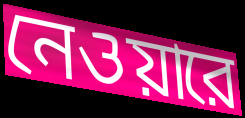
নেওয়ারে